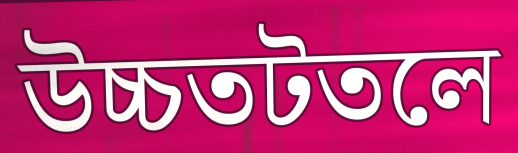
উচ্চতটতলে